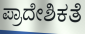
ಪ್ರಾದೇಶಿಕತೆ